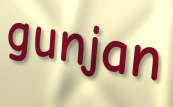
gunjan